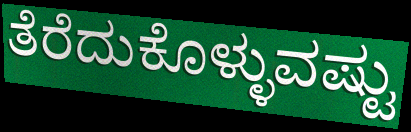
ತೆರೆದುಕೊಳ್ಳುವಷ್ಟು